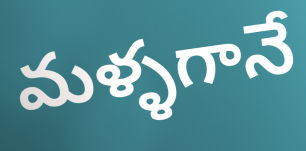
మళ్ళగానే